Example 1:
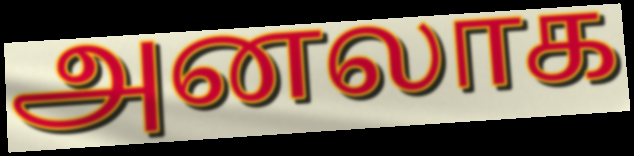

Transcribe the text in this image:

அனலாக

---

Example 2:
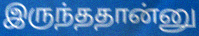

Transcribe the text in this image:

இருந்ததான்னு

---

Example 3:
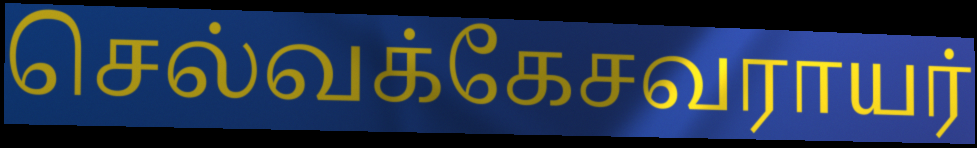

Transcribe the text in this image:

செல்வக்கேசவராயர்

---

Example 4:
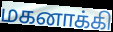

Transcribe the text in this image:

மகனாக்கி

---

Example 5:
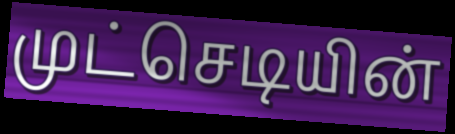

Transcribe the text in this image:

முட்செடியின்